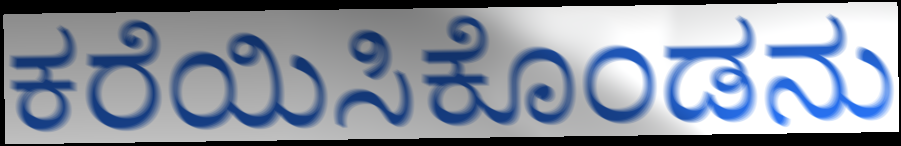
ಕರೆಯಿಸಿಕೊಂಡನು